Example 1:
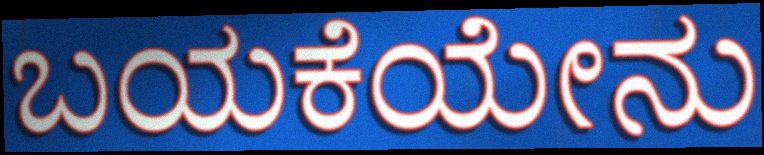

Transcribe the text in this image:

ಬಯಕೆಯೇನು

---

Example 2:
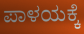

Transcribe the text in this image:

ಪಾಳಯಕ್ಕೆ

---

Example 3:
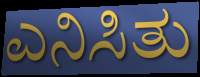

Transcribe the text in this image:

ಎನಿಸಿತು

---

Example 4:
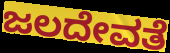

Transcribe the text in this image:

ಜಲದೇವತೆ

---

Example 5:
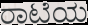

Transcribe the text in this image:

ರಾಟೆಯ